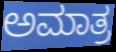
ಅಮಾತ್ರ